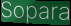
Sopara